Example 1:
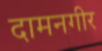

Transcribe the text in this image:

दामनगीर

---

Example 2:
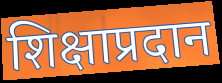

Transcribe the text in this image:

शिक्षाप्रदान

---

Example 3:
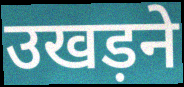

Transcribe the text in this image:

उखड़ने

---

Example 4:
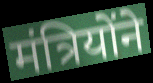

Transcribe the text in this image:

मंत्रियोंने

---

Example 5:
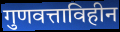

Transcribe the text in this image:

गुणवत्ताविहीन